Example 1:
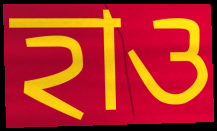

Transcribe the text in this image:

হাও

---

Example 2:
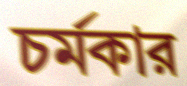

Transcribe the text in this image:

চর্মকার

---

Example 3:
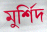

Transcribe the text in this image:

মুর্শিদ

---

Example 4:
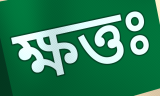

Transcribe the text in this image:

ক্ষত্তঃ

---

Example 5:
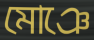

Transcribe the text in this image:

মোঞে